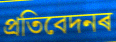
প্ৰতিবেদনৰ